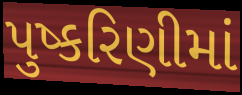
પુષ્કરિણીમાં